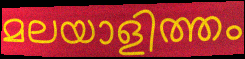
മലയാളിത്തം